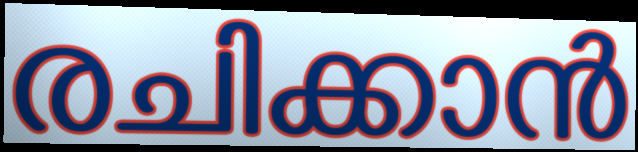
രചിക്കാൻ